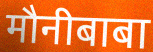
मौनीबाबा